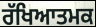
ਰੱਖਿਆਤਮਕ